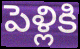
పెళ్లికి